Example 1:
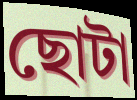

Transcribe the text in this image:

ছোটা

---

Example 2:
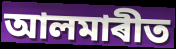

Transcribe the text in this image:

আলমাৰীত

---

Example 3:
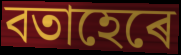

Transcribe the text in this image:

বতাহেৰে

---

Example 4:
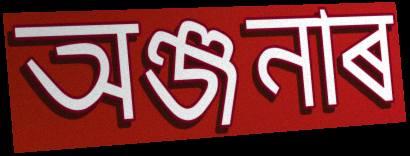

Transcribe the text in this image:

অঞ্জনাৰ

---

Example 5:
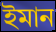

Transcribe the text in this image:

ইমান